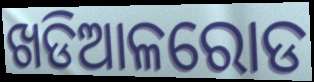
ଖଡିଆଳରୋଡ